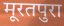
मूरतपुरा